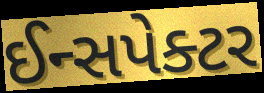
ઈન્સપેક્ટર